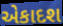
એકાદશ